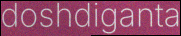
doshdiganta